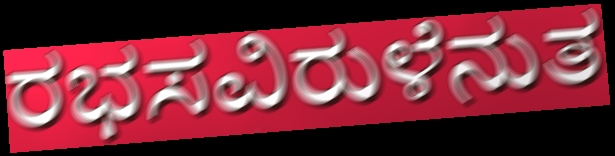
ರಭಸವಿರುಳೆನುತ